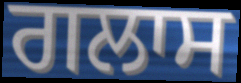
ਗਲਾਸ